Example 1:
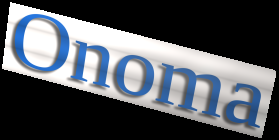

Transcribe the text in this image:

Onoma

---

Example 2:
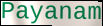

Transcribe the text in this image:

Payanam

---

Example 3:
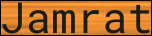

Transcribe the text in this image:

Jamrat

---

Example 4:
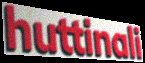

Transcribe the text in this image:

huttinali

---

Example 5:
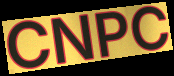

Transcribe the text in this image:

CNPC